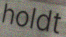
holdt